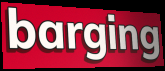
barging